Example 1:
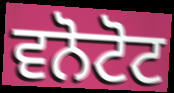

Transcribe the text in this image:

ਵਨੋਟੋਟ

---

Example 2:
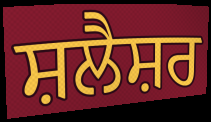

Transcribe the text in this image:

ਸ਼ਲੈਸ਼ਰ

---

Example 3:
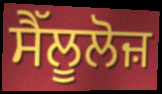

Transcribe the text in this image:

ਸੈੱਲੂਲੋਜ਼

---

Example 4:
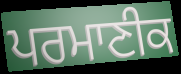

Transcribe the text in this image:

ਪਰਮਾਣੀਕ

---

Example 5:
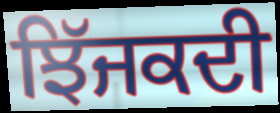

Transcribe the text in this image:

ਝਿੱਜਕਦੀ